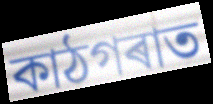
কাঠগৰাত